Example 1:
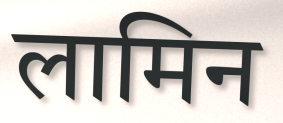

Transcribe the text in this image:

लामिन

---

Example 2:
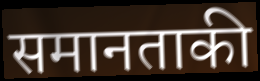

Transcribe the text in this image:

समानताकी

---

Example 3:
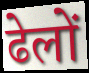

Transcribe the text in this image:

ढेलों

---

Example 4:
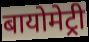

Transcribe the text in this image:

बायोमेट्री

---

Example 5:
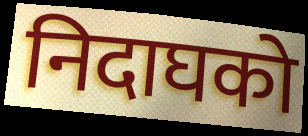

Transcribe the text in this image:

निदाघको